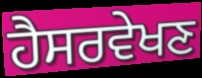
ਹੈਸਰਵੇਖਣ